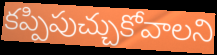
కప్పిపుచ్చుకోవాలని